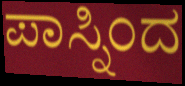
ಪಾಸ್ನಿಂದ